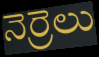
నెర్రెలు